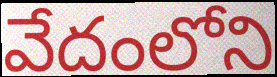
వేదంలోని